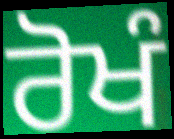
ਰੋਖੰ